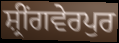
ਸ਼੍ਰੀਂਗਵੇਰਪੁਰ